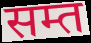
सम्त